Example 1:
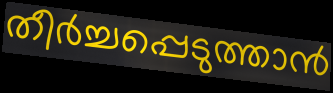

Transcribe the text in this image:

തീർച്ചപ്പെടുത്താൻ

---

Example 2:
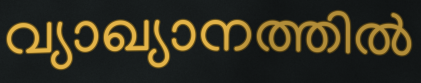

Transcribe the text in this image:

വ്യാഖ്യാനത്തിൽ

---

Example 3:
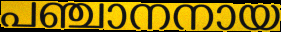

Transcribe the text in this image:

പഞ്ചാനനായ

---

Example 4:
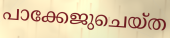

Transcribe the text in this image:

പാക്കേജുചെയ്ത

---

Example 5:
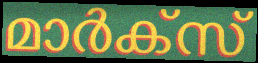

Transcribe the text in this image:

മാർക്‌സ്